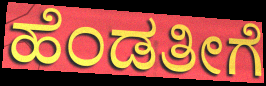
ಹೆಂಡತೀಗೆ